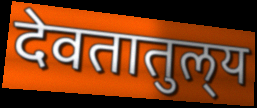
देवतातुल्य